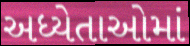
અધ્યેતાઓમાં